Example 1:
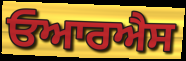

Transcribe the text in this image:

ਓਆਰਐਸ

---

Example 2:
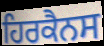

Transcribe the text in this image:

ਹਿਰਕੈਨਸ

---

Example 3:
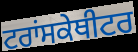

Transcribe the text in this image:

ਟਰਾਂਸਕੇਥੀਟਰ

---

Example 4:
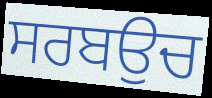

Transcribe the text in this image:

ਸਰਬਉਚ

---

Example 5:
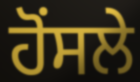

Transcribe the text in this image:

ਹੋਂਸਲੇ